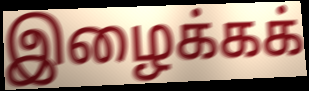
இழைக்கக்